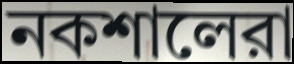
নকশালেরা